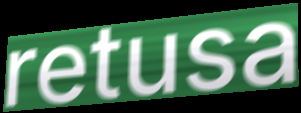
retusa